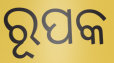
ରୂପକ